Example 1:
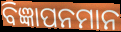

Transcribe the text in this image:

ବିଜ୍ଞାପନମାନ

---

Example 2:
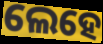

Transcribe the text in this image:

ଲେହେ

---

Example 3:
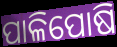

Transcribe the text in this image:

ପାଳିପୋଷି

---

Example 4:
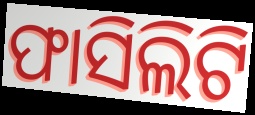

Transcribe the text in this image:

ଫାସିଲିଟି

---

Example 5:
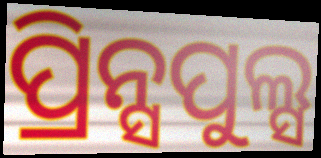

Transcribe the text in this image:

ପ୍ରିନ୍ସପୁଲ୍ସ